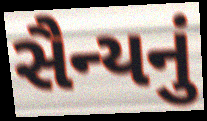
સૈન્યનું